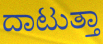
ದಾಟುತ್ತಾ